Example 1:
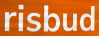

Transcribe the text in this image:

risbud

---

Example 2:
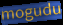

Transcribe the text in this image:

mogudu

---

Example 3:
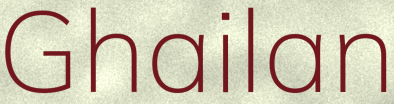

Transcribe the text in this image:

Ghailan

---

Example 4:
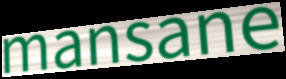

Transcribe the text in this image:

mansane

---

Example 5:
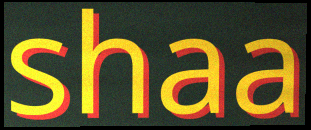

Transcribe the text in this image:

shaa